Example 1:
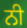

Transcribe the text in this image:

ਨੀ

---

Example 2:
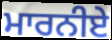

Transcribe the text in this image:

ਮਾਰਨੀਏ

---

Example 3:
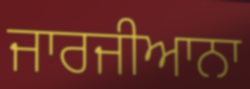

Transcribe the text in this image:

ਜਾਰਜੀਆਨਾ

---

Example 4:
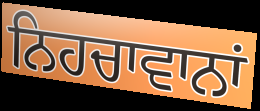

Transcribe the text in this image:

ਨਿਹਚਾਵਾਨਾਂ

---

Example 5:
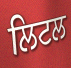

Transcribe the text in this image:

ਲਿਟਲ